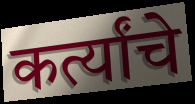
कर्त्यांचे